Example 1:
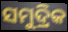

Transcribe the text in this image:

ସମୁଦ୍ରିକ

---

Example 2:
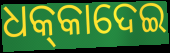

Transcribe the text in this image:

ଧକ୍‌କାଦେଇ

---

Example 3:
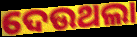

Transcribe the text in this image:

ଦେଉଥଲା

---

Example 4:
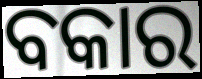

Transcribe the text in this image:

ବକାର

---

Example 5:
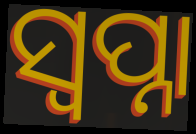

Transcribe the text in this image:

ସ୍ୱପ୍ନା